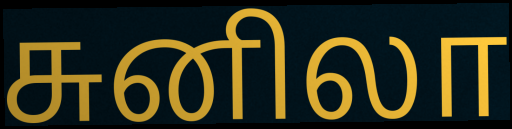
சுனிலா